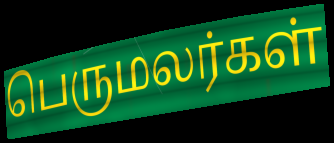
பெருமலர்கள்